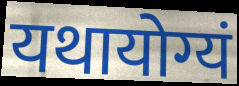
यथायोग्यं